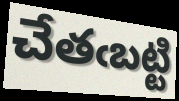
చేతఁబట్టి